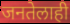
जनतेलाही